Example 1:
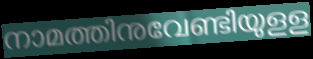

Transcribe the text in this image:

നാമത്തിനുവേണ്ടിയുളള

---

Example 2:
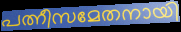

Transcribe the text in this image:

പത്നീസമേതനായി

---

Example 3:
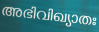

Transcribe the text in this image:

അഭിവിഖ്യാതഃ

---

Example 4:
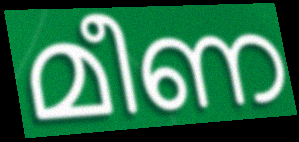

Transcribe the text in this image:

മീണ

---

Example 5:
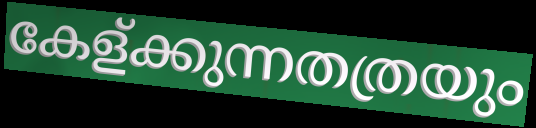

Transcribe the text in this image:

കേള്ക്കുന്നതത്രയും